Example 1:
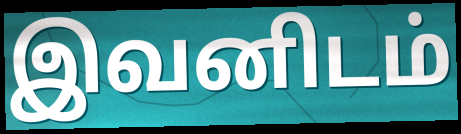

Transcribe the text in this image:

இவனிடம்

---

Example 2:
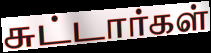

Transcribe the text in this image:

சுட்டார்கள்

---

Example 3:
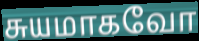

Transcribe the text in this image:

சுயமாகவோ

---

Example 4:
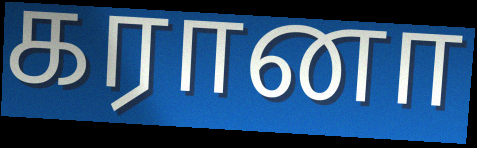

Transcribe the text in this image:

கரானா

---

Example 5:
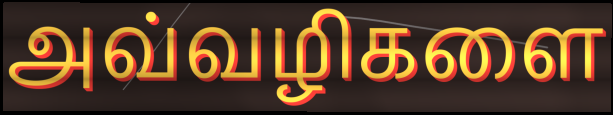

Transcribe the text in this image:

அவ்வழிகளை